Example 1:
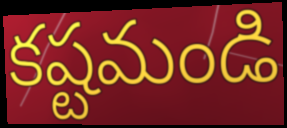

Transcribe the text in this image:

కష్టమండి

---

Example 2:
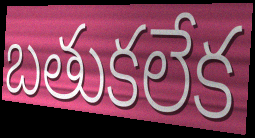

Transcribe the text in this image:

బతుకలేక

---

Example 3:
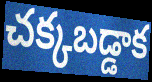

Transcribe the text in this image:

చక్కబడ్డాక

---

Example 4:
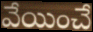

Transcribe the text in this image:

వేయించే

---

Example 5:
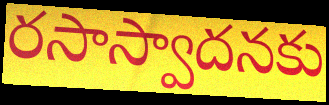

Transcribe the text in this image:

రసాస్వాదనకు